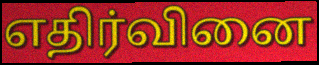
எதிர்வினை